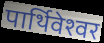
पार्थिवेश्वर